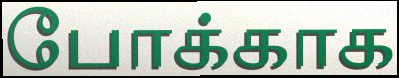
போக்காக